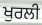
ਖੁਰਲੀ